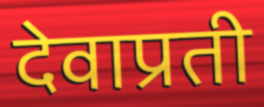
देवाप्रती